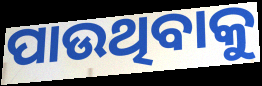
ପାଉଥିବାକୁ